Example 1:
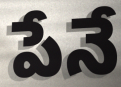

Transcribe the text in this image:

పేనే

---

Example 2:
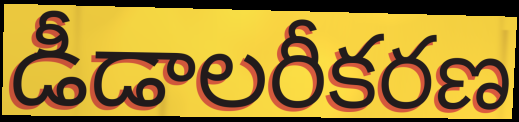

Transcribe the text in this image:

డీడాలరీకరణ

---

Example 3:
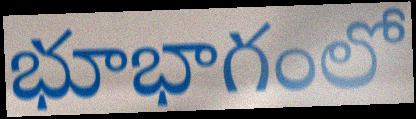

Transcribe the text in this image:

భూభాగంలో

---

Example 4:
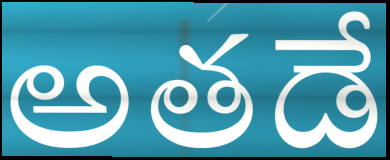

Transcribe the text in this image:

అతడే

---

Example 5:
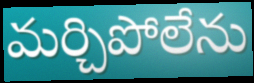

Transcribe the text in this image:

మర్చిపోలేను